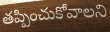
తప్పించుకోవాలని